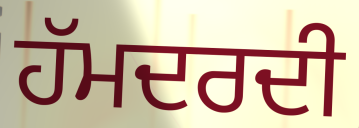
ਹੱਮਦਰਦੀ